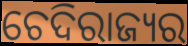
ଚେଦିରାଜ୍ୟର